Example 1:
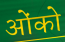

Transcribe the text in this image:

ओंको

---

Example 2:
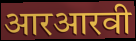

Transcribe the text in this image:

आरआरवी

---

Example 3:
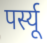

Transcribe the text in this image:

पर्स्यू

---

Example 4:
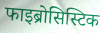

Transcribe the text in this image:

फाइब्रोसिस्टिक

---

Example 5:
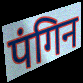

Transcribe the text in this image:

पंगिन